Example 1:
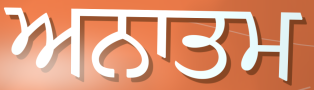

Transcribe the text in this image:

ਅਨਾਤਮ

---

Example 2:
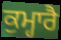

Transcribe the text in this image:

ਕੁਮ੍ਹ੍ਹਾਰੈ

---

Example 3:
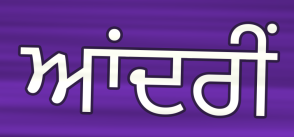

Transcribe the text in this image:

ਆਂਦਰੀਂ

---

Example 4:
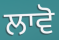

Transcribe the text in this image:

ਲਾਵੋ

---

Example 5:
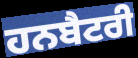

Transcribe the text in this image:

ਹਨਬੈਟਰੀ